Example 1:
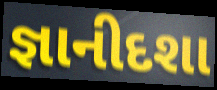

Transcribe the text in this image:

જ્ઞાનીદશા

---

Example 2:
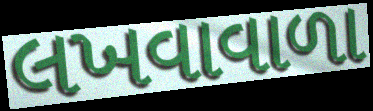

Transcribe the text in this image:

લખવાવાળા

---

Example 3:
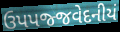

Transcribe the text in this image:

ઉપપજ્જવેદનીયં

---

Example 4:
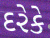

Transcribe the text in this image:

દરેકે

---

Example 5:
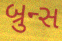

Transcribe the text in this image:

બ્રુન્સ